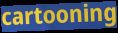
cartooning